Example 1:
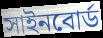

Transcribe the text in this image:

সাইনবোর্ড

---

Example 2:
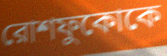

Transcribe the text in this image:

রোশফুকোকে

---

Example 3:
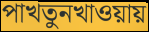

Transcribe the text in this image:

পাখতুনখাওয়ায়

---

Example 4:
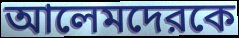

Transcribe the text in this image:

আলেমদেরকে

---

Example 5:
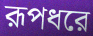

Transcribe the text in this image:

রূপধরে